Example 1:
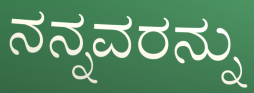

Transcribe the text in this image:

ನನ್ನವರನ್ನು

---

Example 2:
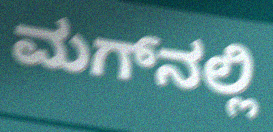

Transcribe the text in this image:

ಮಗ್‌ನಲ್ಲಿ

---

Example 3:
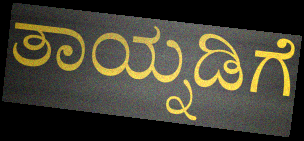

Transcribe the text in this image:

ತಾಯ್ನಡಿಗೆ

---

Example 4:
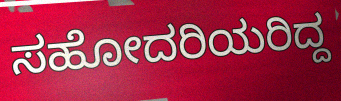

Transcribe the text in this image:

ಸಹೋದರಿಯರಿದ್ದ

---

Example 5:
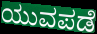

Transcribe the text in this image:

ಯುವಪಡೆ